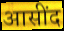
आसींद